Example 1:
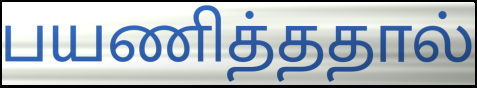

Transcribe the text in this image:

பயணித்ததால்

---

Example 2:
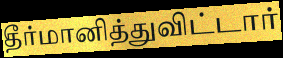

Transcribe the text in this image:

தீர்மானித்துவிட்டார்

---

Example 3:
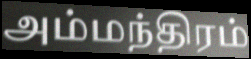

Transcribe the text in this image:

அம்மந்திரம்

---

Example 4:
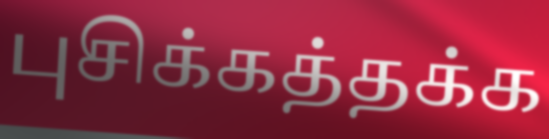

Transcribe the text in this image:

புசிக்கத்தக்க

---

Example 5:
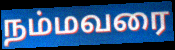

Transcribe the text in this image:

நம்மவரை